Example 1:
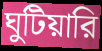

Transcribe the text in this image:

ঘুটিয়ারি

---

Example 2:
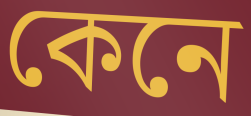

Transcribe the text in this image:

কেনে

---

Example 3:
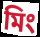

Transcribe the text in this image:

মিং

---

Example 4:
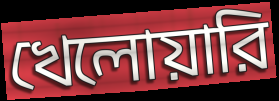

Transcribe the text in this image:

খেলোয়ারি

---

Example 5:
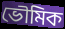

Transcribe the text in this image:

ভৌমিক